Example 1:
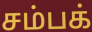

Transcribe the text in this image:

சம்பக்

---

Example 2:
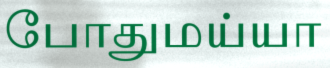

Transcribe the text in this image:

போதுமய்யா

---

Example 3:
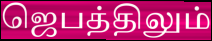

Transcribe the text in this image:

ஜெபத்திலும்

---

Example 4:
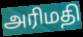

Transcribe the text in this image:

அரிமதி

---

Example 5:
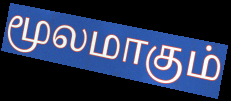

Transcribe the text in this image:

மூலமாகும்